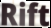
Rift